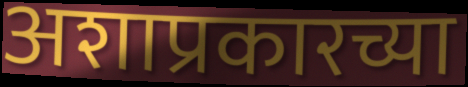
अशाप्रकारच्या